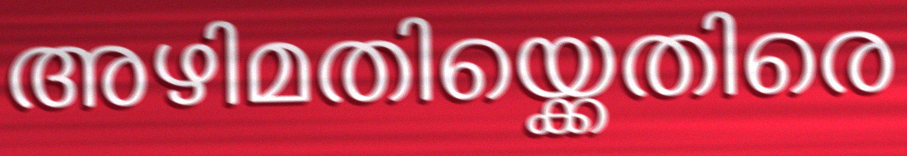
അഴിമതിയ്ക്കെതിരെ